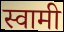
स्वामी